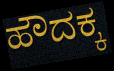
ಹೌದಕ್ಕ